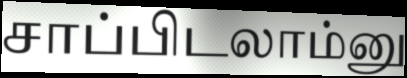
சாப்பிடலாம்னு